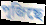
পূজিছে